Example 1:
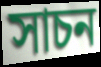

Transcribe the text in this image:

সাচন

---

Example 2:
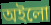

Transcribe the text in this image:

অইলো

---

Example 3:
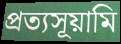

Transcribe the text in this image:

প্রত্যসূয়ামি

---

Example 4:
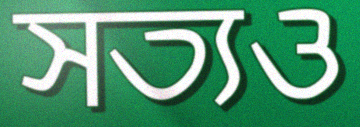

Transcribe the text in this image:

সত্যও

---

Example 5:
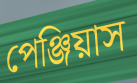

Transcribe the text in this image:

পেঞ্জিয়াস